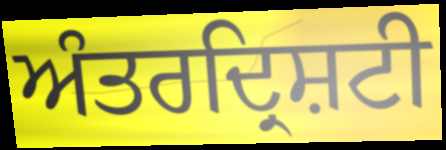
ਅੰਤਰਦ੍ਰਿਸ਼ਟੀ